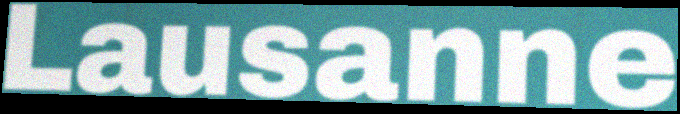
Lausanne